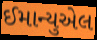
ઈમાન્યુએલ